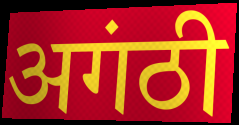
अगंठी